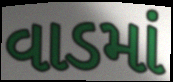
વાડમાં